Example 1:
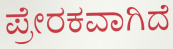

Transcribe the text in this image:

ಪ್ರೇರಕವಾಗಿದೆ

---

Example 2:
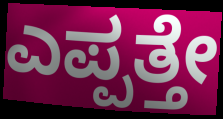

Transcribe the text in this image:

ಎಪ್ಪತ್ತೇ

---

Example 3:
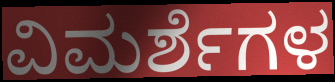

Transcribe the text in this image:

ವಿಮರ್ಶೆಗಳ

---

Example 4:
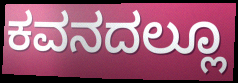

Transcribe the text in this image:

ಕವನದಲ್ಲೂ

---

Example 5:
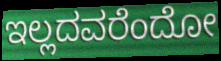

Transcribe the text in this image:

ಇಲ್ಲದವರೆಂದೋ